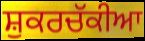
ਸ਼ੁਕਰਚੱਕੀਆ